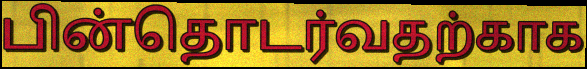
பின்தொடர்வதற்காக